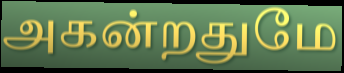
அகன்றதுமே